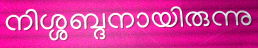
നിശ്ശബ്ദനായിരുന്നു